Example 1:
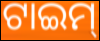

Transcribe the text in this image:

ଟାଇମ୍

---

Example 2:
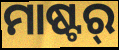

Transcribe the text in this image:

ମାଷ୍ଟର୍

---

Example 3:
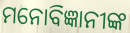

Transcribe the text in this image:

ମନୋବିଜ୍ଞାନୀଙ୍କ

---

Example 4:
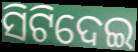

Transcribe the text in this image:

ସିଟିଦେଇ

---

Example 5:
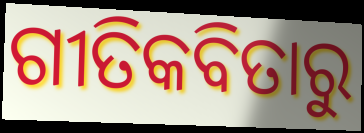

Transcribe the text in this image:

ଗୀତିକବିତାରୁ